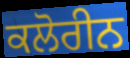
ਕਲੋਰੀਨ